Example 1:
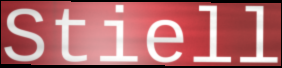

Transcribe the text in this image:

Stiell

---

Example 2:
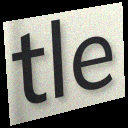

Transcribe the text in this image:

tle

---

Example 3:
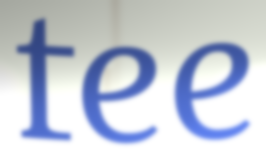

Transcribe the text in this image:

tee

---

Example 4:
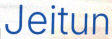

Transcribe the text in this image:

Jeitun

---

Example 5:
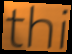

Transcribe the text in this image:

thi